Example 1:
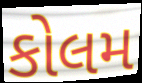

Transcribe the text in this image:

કોલમ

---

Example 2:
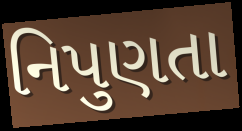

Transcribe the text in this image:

નિપુણતા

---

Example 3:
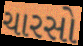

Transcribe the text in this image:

ચારસો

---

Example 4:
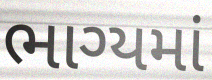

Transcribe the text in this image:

ભાગ્યમાં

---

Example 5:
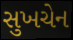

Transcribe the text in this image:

સુખચેન